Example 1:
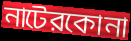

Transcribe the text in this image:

নাটেরকোনা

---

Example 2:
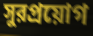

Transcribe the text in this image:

সুরপ্রয়োগ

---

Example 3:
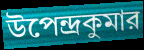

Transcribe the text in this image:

উপেন্দ্রকুমার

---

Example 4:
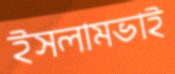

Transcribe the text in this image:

ইসলামভাই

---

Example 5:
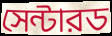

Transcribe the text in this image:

সেন্টারড